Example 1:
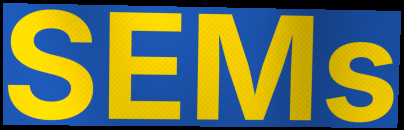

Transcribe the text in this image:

SEMs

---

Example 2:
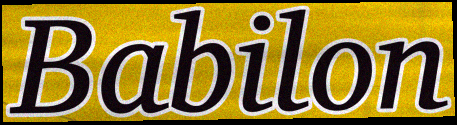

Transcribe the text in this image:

Babilon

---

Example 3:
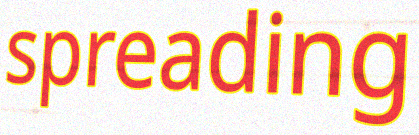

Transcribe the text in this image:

spreading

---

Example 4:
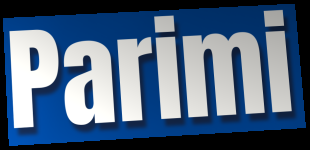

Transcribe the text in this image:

Parimi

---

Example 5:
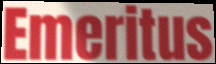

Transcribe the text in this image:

Emeritus